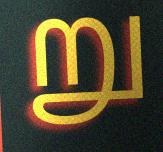
று